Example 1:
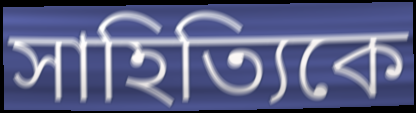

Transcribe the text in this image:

সাহিত্যিকে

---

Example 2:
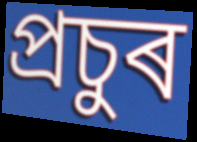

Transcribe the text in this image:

প্ৰচুৰ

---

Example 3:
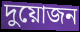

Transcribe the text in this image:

দুয়োজন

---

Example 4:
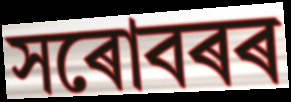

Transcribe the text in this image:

সৰোবৰৰ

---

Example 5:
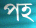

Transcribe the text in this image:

পহ